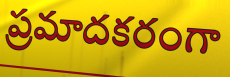
ప్రమాదకరంగా